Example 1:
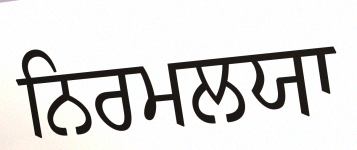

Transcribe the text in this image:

ਨਿਰਮਲਯਾ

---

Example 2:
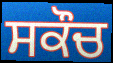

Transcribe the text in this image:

ਸਕੌਚ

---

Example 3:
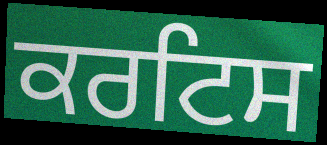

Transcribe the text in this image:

ਕਰਟਿਸ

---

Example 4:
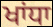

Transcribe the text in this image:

ਖਾਂਧਾ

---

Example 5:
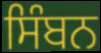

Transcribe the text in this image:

ਸਿੰਬਨ